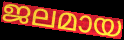
ജലമായ